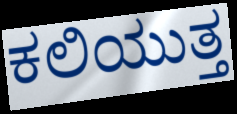
ಕಲಿಯುತ್ತ